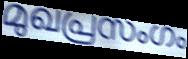
മുഖപ്രസംഗം